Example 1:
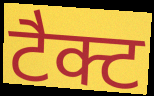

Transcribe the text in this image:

टैक्ट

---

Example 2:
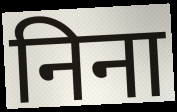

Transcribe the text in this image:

निना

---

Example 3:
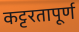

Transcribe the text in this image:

कट्टरतापूर्ण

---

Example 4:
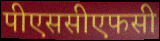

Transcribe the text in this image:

पीएससीएफसी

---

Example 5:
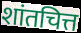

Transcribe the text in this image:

शांतचित्त